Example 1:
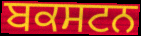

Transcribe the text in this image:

ਬਕਸਟਨ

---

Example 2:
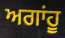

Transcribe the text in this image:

ਅਗਾਂਹੂ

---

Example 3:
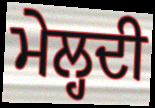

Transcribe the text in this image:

ਮੇਲ੍ਹਦੀ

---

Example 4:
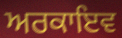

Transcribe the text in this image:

ਅਰਕਾਇਵ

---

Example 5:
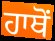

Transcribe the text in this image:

ਹਾਥੋਂ